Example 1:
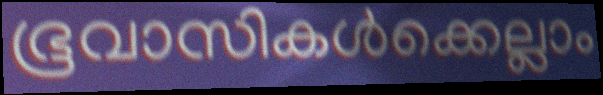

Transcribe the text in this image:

ഭൂവാസികൾക്കെല്ലാം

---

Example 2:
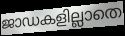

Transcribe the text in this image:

ജാഡകളില്ലാതെ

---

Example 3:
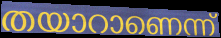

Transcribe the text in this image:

തയാറാണെന്ന്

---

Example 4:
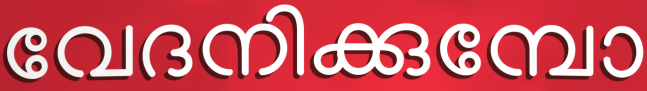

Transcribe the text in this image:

വേദനിക്കുമ്പോ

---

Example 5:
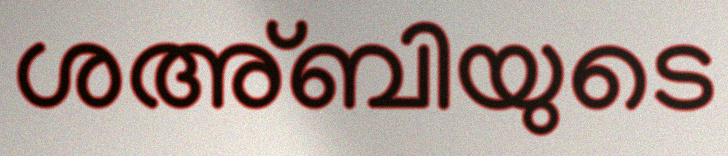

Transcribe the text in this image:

ശഅ്ബിയുടെ